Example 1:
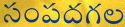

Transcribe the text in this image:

సంపదగల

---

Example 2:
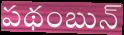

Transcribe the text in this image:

పథంబున్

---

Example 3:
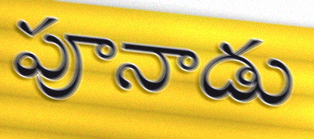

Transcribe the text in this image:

పూనాడు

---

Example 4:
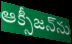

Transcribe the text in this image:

ఆక్సీజన్‌ను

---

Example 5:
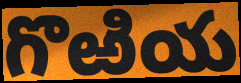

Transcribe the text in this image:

గొఱియ